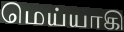
மெய்யாகி